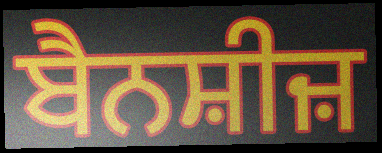
ਬੈਨਸ਼ੀਜ਼